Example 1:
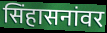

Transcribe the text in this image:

सिंहासनांवर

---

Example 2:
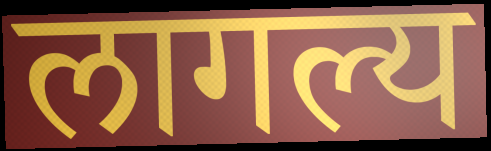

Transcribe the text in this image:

लागल्य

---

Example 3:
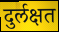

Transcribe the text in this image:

दुर्लक्षत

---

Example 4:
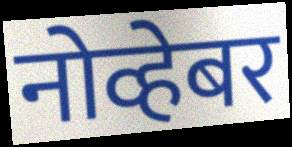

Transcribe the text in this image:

नोव्हेबर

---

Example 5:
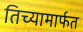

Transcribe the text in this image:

तिच्यामार्फत